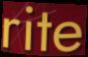
rite